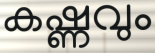
കഷ്ണവും